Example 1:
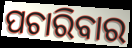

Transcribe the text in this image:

ପଚାରିବାର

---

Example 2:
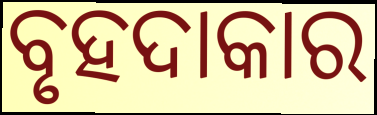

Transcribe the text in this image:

ବୃହଦାକାର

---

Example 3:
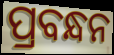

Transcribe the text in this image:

ପ୍ରବନ୍ଧନ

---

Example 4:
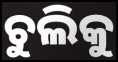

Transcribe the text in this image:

ଚୁଲିକୁ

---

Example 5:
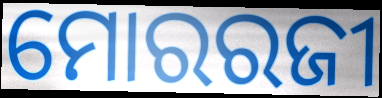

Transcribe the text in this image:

ମୋରରଜୀ